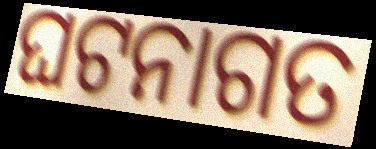
ଘଟନାଗତ